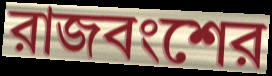
রাজবংশের